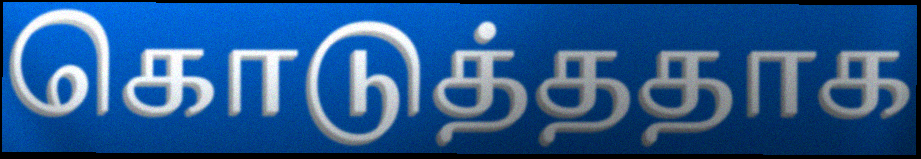
கொடுத்ததாக